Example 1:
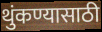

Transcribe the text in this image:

थुंकण्यासाठी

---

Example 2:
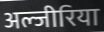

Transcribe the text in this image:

अल्जीरिया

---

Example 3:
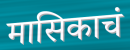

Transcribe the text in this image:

मासिकाचं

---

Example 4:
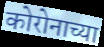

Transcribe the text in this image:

कोरोनाच्या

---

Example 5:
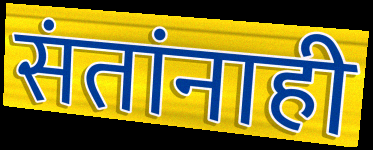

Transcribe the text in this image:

संतांनाही